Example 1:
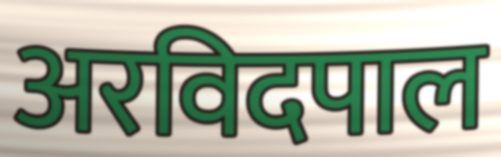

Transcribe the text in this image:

अरविदपाल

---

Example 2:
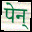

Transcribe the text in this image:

पेन्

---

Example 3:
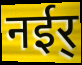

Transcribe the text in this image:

नईर्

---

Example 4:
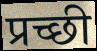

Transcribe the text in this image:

प्रच्छी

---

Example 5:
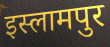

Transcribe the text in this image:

इस्लामपुर